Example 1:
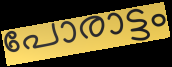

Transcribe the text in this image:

പോരാട്ടം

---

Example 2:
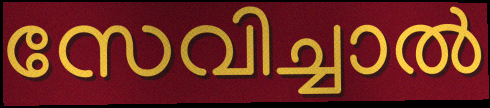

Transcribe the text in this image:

സേവിച്ചാൽ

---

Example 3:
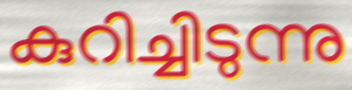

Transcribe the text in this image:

കുറിച്ചിടുന്നു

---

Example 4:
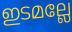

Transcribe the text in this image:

ഇടമല്ലേ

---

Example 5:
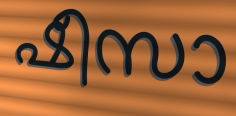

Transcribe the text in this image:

ഷീസാ